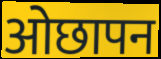
ओछापन